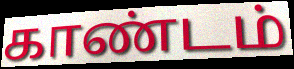
காண்டம்